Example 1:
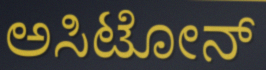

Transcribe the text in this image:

ಅಸಿಟೋನ್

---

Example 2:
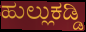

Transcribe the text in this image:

ಹುಲ್ಲುಕಡ್ಡಿ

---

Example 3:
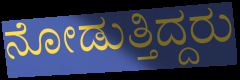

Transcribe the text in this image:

ನೋಡುತ್ತಿದ್ದರು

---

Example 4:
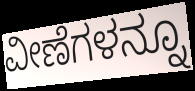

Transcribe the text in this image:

ವೀಣೆಗಳನ್ನೂ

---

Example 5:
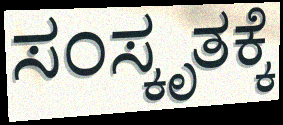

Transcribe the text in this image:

ಸಂಸ್ಕೃತಕ್ಕೆ